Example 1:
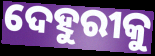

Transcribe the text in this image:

ଦେହୁରୀକୁ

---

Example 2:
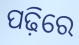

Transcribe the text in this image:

ପଢ଼ିରେ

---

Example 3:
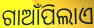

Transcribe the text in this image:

ଗାଆଁପିଲାଏ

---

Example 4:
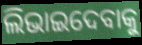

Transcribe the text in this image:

ଲିଭାଇଦେବାକୁ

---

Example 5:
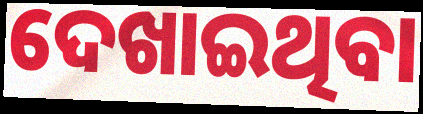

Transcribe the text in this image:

ଦେଖାଇଥିବା